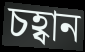
চহ্বান